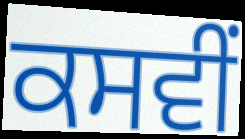
ਕਸਵੀਂ